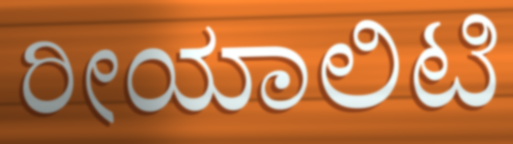
ರೀಯಾಲಿಟಿ